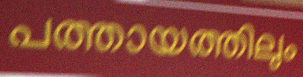
പത്തായത്തിലും